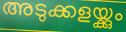
അടുക്കളയ്ക്കും